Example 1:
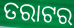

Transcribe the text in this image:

ତରାଟର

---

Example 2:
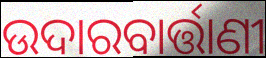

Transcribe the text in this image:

ଉଦାରବାର୍ତ୍ତାଣୀ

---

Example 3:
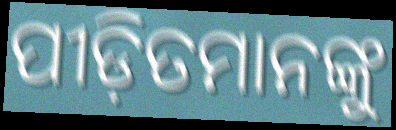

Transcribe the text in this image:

ପୀଡ଼ିତମାନଙ୍କୁ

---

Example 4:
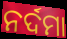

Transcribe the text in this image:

ନର୍ଦମା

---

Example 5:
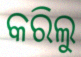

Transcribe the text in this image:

କରିଲୁ